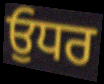
ਓੁਧਰ